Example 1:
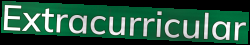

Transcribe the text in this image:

Extracurricular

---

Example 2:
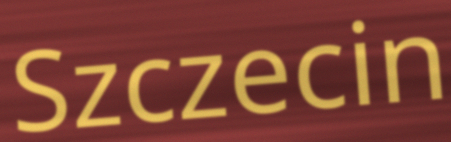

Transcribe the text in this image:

Szczecin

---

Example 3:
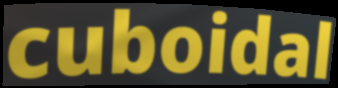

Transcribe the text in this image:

cuboidal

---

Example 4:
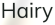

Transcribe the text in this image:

Hairy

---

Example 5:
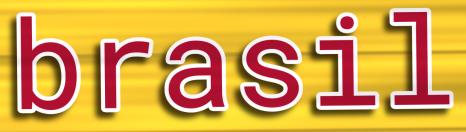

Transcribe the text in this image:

brasil